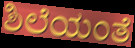
ಶಿಲೆಯಂತೆ